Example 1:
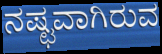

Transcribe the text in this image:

ನಷ್ಟವಾಗಿರುವ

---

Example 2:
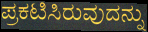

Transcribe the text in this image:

ಪ್ರಕಟಿಸಿರುವುದನ್ನು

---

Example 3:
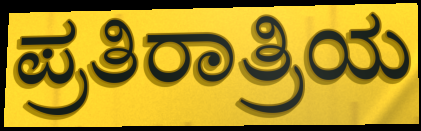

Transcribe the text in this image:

ಪ್ರತಿರಾತ್ರಿಯ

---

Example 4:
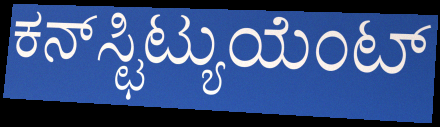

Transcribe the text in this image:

ಕನ್‌ಸ್ಟಿಟ್ಯುಯೆಂಟ್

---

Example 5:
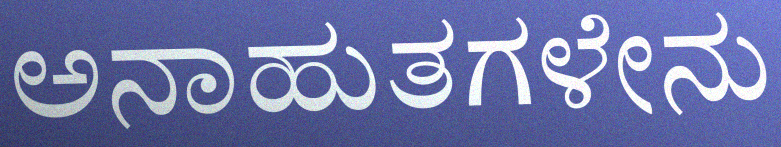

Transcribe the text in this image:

ಅನಾಹುತಗಳೇನು